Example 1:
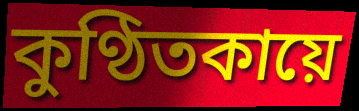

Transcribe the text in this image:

কুণ্ঠিতকায়ে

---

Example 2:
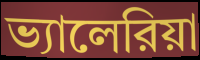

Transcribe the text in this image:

ভ্যালেরিয়া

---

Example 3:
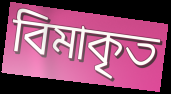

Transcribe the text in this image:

বিমাকৃত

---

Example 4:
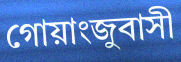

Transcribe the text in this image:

গোয়াংজুবাসী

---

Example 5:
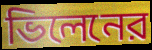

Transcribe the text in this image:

ভিলেনের